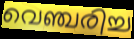
വെഞ്ചരിച്ച